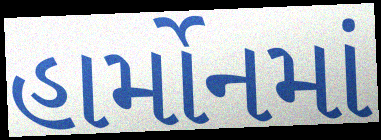
હાર્મોનમાં